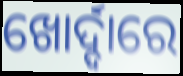
ଖୋର୍ଦ୍ଦାରେ